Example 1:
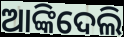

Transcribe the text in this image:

ଆଙ୍କିଦେଲି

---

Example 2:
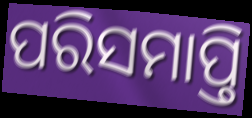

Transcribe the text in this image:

ପରିସମାପ୍ତି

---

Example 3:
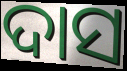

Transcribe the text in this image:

ଦାସ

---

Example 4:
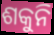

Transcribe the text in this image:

ଶକୁନି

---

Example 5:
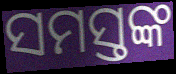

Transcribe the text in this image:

ସମସ୍ତଙ୍କ